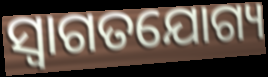
ସ୍ବାଗତଯୋଗ୍ୟ